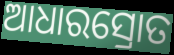
ଆଧାରସ୍ରୋତ